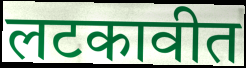
लटकावीत